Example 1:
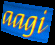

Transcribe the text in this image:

aagi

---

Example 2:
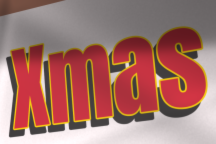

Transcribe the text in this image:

Xmas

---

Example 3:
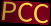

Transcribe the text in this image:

PCC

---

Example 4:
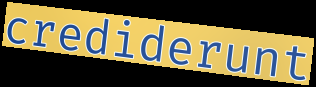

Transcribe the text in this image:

crediderunt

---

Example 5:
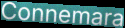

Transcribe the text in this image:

Connemara